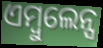
ଏମ୍ବୁଲେନ୍ସ